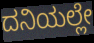
ದನಿಯಲ್ಲೇ